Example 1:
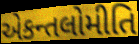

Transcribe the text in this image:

એકન્તલોમીતિ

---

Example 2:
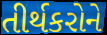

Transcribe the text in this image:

તીર્થકરોને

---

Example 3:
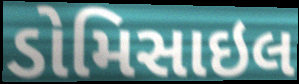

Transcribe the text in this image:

ડોમિસાઇલ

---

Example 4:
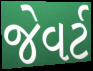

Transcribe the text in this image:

જેવર્ટ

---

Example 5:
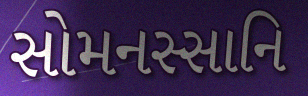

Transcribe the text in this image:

સોમનસ્સાનિ